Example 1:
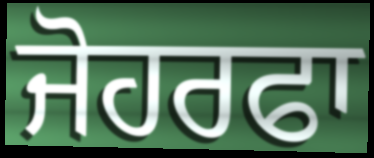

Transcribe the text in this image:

ਜੋਹਰਫਾ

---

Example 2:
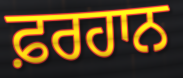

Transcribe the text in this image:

ਫ਼ਰਹਾਨ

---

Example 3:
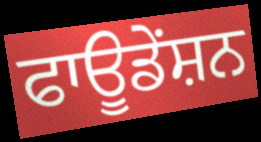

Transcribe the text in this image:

ਫਾਊਡੇਂਸ਼ਨ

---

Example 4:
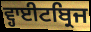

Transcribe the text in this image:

ਵ੍ਹਾਈਟਬ੍ਰਿਜ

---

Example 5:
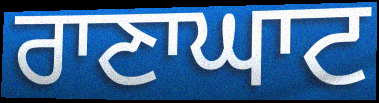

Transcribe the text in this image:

ਰਾਣਾਘਾਟ